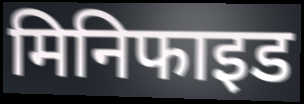
मिनिफाइड